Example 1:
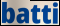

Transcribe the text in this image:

batti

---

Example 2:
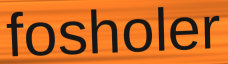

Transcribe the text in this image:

fosholer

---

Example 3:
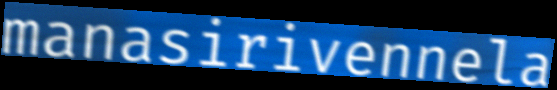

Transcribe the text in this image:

manasirivennela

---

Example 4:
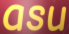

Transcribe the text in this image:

asu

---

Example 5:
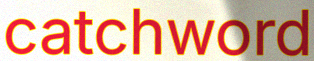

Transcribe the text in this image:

catchword